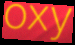
oxy